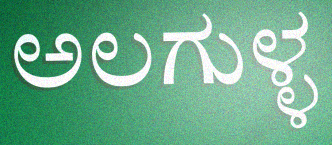
ಅಲಗುಳ್ಳ